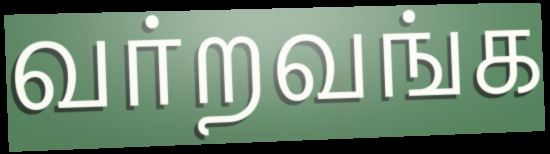
வர்றவங்க